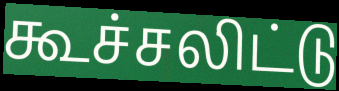
கூச்சலிட்டு